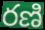
రణి